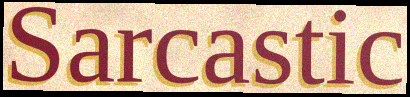
Sarcastic